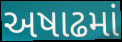
અષાઢમાં